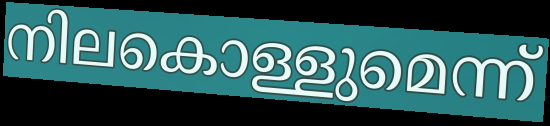
നിലകൊള്ളുമെന്ന്